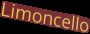
Limoncello